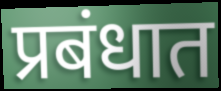
प्रबंधात